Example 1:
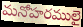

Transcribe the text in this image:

మనోహరములై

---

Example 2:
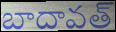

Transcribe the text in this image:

బాదావత్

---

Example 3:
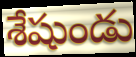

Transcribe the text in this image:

శేషుండు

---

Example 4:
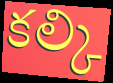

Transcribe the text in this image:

కల్కి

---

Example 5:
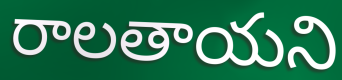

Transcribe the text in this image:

రాలతాయని